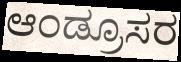
ಆಂಡ್ರೂಸರ